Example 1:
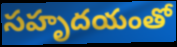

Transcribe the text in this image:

సహృదయంతో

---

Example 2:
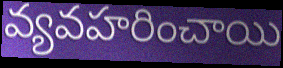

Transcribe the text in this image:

వ్యవహరించాయి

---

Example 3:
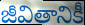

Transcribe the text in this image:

జీవితానికీ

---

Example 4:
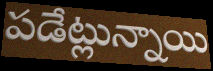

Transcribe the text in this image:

పడేట్లున్నాయి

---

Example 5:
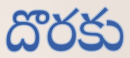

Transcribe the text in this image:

దొరకు